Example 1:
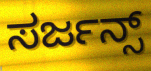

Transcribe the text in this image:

ಸರ್ಜನ್ಸ್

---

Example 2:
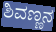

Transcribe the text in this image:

ಶಿವಣ್ಣನ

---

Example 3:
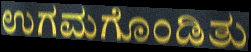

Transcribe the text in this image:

ಉಗಮಗೊಂಡಿತು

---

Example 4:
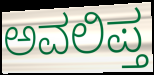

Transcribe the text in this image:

ಅವಲಿಪ್ತ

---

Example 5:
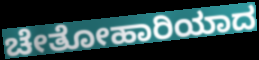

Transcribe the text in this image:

ಚೇತೋಹಾರಿಯಾದ